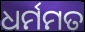
ଧର୍ମମତ